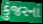
કુંજરનાં